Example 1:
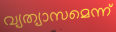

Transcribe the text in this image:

വ്യത്യാസമെന്ന്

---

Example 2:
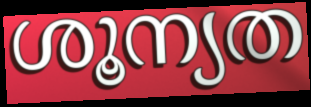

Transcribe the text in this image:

ശൂന്യത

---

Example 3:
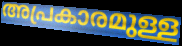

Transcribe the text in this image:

അപ്രകാരമുള്ള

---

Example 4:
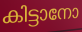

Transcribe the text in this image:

കിട്ടാനോ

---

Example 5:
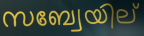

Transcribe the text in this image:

സബ്വേയില്